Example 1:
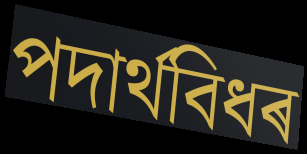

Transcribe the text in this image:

পদাৰ্থবিধৰ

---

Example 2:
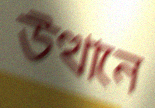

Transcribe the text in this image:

উত্থানে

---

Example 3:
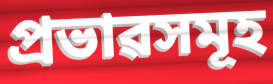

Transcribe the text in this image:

প্ৰভাৱসমূহ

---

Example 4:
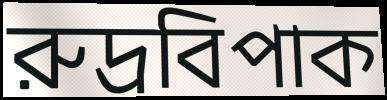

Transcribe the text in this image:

ৰুদ্ৰবিপাক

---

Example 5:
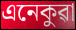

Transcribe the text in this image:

এনেকুৱা